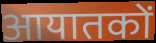
आयातकों